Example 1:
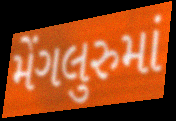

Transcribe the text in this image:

મેંગલુરુમાં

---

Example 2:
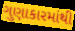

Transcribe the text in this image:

ગુણાકારમાંથી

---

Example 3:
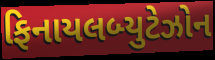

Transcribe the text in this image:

ફિનાયલબ્યુટેઝોન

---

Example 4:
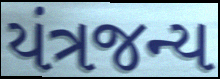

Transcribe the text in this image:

યંત્રજન્ય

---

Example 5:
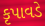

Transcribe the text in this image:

કૃપાવડે